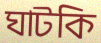
ঘাটকি